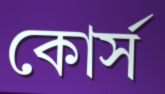
কোর্স